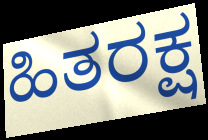
ಹಿತರಕ್ಷ